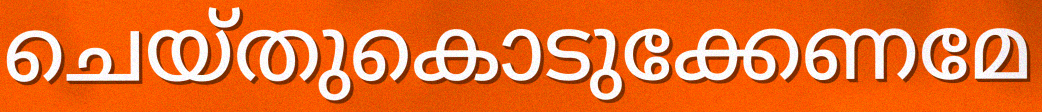
ചെയ്തുകൊടുക്കേണമേ